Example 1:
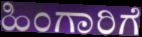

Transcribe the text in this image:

ಹಿಂಗಾರಿಗೆ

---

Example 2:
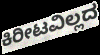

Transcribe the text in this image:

ಕಿರೀಟವಿಲ್ಲದ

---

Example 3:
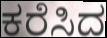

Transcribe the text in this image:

ಕರೆಸಿದ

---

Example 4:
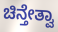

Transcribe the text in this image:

ಚಿನ್ತೇತ್ವಾ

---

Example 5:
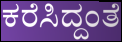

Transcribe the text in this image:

ಕರೆಸಿದ್ದಂತೆ